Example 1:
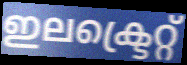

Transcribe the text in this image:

ഇലക്ട്രെറ്റ്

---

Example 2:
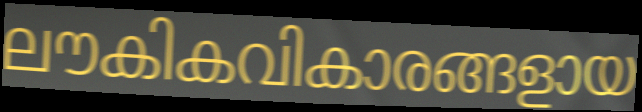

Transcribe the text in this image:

ലൗകികവികാരങ്ങളായ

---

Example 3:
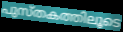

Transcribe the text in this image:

പുസ്തകത്തിലൂടെ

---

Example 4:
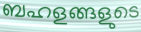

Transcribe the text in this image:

ബഹളങ്ങളുടെ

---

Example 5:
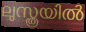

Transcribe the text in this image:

ലുസ്ത്രയിൽ